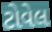
ટોવેલ